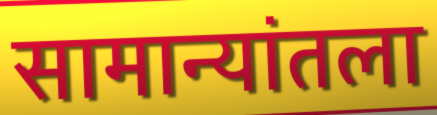
सामान्यांतला